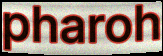
pharoh